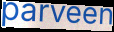
parveen